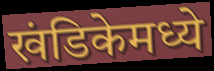
खंडिकेमध्ये